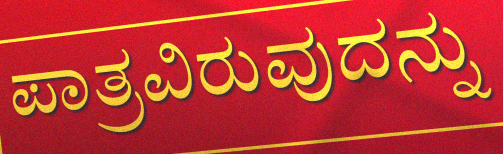
ಪಾತ್ರವಿರುವುದನ್ನು